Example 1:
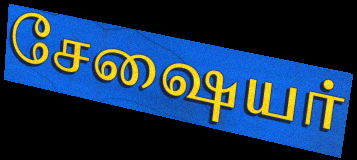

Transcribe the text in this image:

சேஷையர்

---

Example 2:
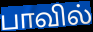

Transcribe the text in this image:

பாவில்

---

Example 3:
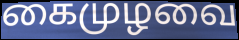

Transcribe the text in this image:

கைமுழவை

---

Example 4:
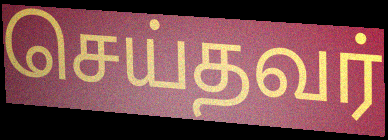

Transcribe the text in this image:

செய்தவர்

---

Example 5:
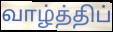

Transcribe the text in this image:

வாழ்த்திப்